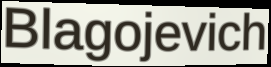
Blagojevich